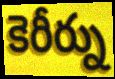
కెరీర్ను